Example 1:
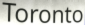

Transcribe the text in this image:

Toronto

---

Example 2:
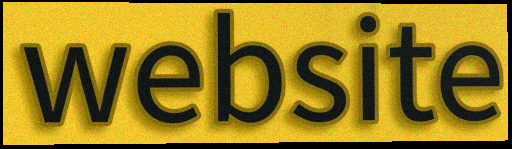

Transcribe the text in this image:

website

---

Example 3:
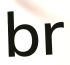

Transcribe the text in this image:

br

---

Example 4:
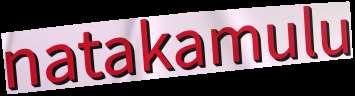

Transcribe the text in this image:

natakamulu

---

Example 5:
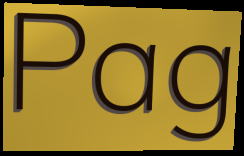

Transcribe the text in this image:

Pag